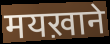
मयख़ाने